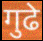
गुढे